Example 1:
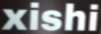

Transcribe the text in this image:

xishi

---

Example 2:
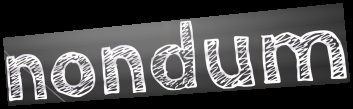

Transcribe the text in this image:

nondum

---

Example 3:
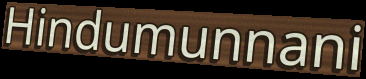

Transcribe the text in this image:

Hindumunnani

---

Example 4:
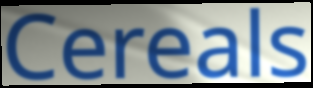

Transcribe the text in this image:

Cereals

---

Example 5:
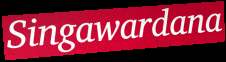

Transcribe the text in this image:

Singawardana